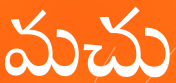
మచు